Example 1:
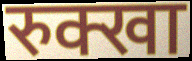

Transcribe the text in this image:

रुक्खा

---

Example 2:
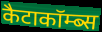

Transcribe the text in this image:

कैटाकॉम्ब्स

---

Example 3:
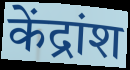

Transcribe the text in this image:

केंद्रांश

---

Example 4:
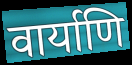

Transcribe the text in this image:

वार्याणि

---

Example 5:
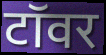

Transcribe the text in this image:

टॉवर